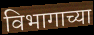
विभागाच्या